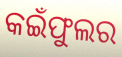
କଇଁଫୁଲର